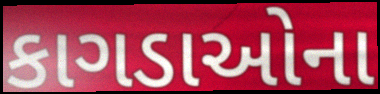
કાગડાઓના